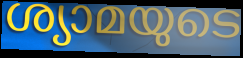
ശ്യാമയുടെ